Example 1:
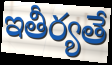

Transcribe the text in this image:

ఇతీర్యతే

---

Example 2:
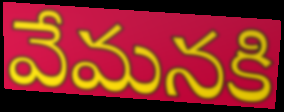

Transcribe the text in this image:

వేమనకి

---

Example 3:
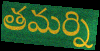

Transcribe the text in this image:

తమర్ని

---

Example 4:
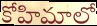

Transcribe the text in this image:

కోహిమాలో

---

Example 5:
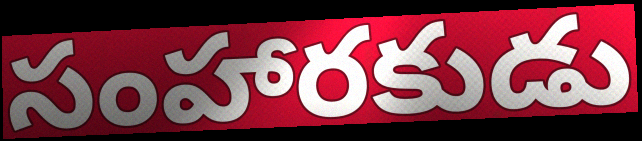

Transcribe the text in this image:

సంహారకుడు